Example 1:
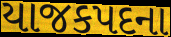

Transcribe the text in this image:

યાજકપદના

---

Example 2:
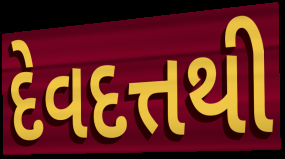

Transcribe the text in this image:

દેવદત્તથી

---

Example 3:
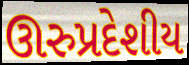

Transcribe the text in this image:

ઊરુપ્રદેશીય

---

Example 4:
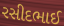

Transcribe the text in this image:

રસીદભાઈ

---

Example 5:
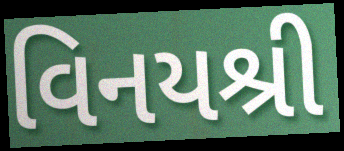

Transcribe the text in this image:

વિનયશ્રી